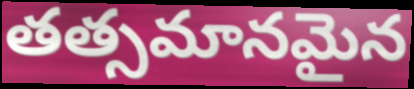
తత్సమానమైన